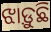
ଝାଡ଼ୁଛି